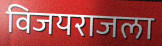
विजयराजला